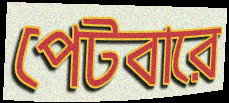
পেটবারে